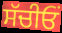
ਸੱਚੀਓਂ